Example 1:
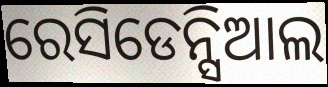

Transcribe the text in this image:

ରେସିଡେନ୍ସିଆଲ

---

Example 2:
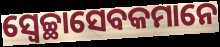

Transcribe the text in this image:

ସ୍ୱେଚ୍ଛାସେବକମାନେ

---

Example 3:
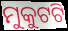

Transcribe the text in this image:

ମୁକୁଟଟି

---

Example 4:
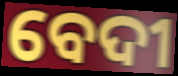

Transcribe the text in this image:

ବେଦୀ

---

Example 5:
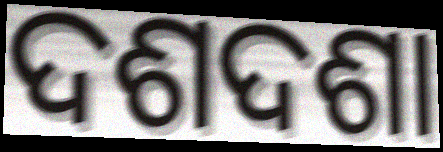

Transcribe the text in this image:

ଦଶଦଶା